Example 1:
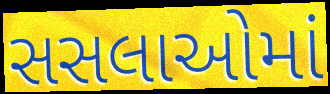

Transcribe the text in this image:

સસલાઓમાં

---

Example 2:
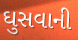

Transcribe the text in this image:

ઘુસવાની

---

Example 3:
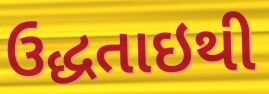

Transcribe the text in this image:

ઉદ્ધતાઇથી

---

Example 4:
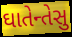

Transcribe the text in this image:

ઘાતેન્તેસુ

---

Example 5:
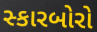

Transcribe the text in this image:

સ્કારબોરો